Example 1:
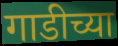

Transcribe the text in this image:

गाडीच्या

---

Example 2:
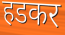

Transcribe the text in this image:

हडकर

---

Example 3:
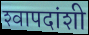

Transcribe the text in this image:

श्वापदांशी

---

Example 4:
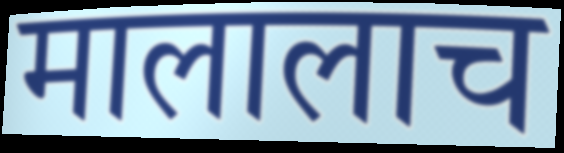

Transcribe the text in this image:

मालालाच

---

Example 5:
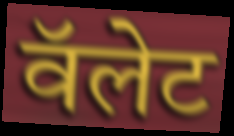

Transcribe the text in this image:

वॅलेट